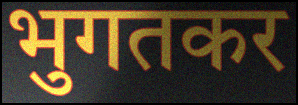
भुगतकर